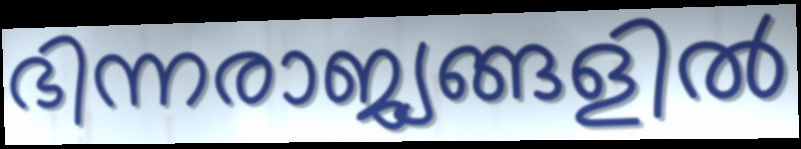
ഭിന്നരാജ്യങ്ങളിൽ